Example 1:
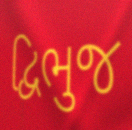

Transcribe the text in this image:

દ્વિભુજ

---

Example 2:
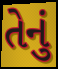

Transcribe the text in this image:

તેનું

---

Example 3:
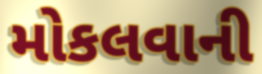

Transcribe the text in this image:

મોકલવાની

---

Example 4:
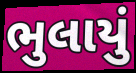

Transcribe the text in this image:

ભુલાયું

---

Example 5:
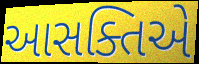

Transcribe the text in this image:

આસક્તિએ